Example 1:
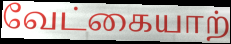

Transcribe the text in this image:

வேட்கையாற்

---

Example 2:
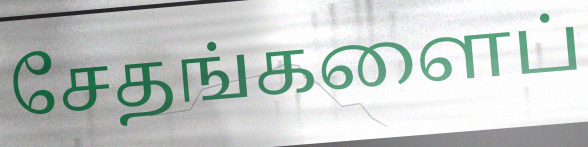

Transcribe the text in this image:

சேதங்களைப்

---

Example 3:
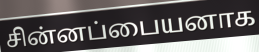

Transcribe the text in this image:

சின்னப்பையனாக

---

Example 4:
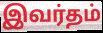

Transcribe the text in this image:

இவர்தம்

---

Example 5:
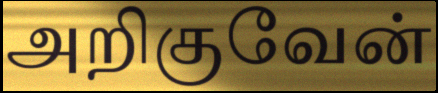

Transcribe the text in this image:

அறிகுவேன்